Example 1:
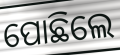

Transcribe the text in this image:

ପୋଛିଲେ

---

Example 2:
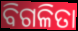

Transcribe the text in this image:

ବିଗଳିତା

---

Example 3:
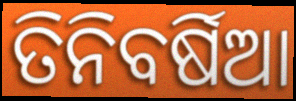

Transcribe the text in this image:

ତିନିବର୍ଷିଆ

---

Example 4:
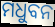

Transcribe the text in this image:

ମଧୁବନ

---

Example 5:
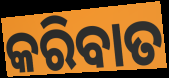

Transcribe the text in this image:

କରିବାତ